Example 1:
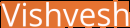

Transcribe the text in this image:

Vishvesh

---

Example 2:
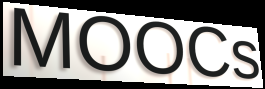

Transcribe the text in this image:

MOOCs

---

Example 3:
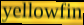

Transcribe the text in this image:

yellowfin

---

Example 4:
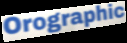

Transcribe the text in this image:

Orographic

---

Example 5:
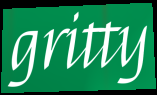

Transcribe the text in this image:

gritty